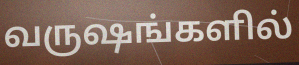
வருஷங்களில்